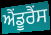
ਐਂਡੂਰੈਂਸ